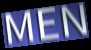
MEN